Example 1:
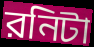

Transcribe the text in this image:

রনিটা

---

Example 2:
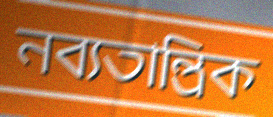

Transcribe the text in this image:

নব্যতান্ত্রিক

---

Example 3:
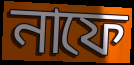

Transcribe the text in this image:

নাফে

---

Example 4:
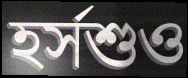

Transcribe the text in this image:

হর্সশুও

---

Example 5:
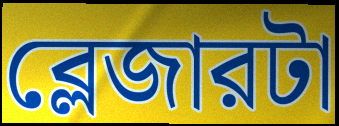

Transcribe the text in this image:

ব্লেজারটা